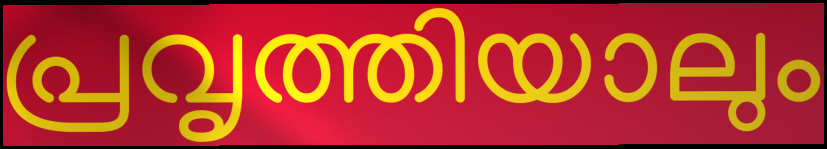
പ്രവൃത്തിയാലും